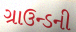
ગ્રાઉન્ડની